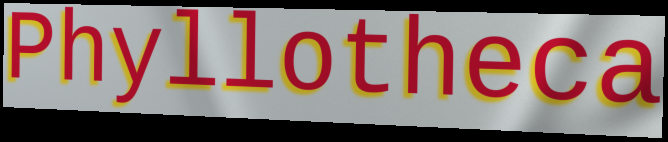
Phyllotheca